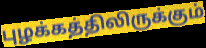
புழக்கத்திலிருக்கும்